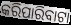
କରିପାରିବାଟା